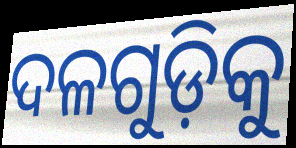
ଦଳଗୁଡ଼ିକୁ